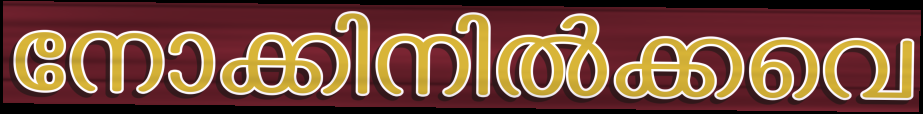
നോക്കിനിൽക്കവെ